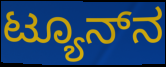
ಟ್ಯೂನ್‌ನ